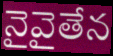
నైవైతేన